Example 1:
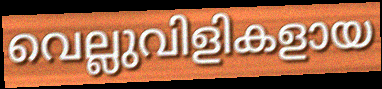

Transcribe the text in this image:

വെല്ലുവിളികളായ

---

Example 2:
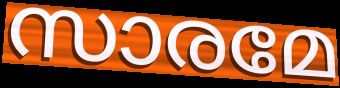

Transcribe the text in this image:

സാരമേ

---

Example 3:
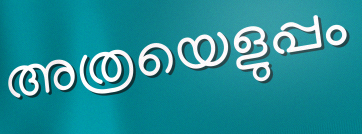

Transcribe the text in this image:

അത്രയെളുപ്പം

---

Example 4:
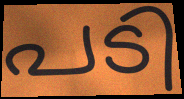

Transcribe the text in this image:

പടി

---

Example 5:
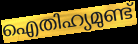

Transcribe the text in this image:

ഐതിഹ്യമുണ്ട്